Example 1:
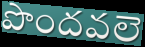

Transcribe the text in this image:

పొందవలె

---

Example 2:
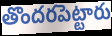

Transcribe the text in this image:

తొందరపెట్టారు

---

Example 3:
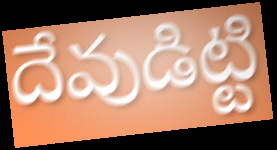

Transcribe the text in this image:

దేవుడిట్టి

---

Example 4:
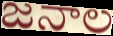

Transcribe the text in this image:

జనాల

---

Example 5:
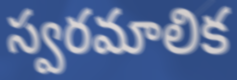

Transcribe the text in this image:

స్వరమాలిక